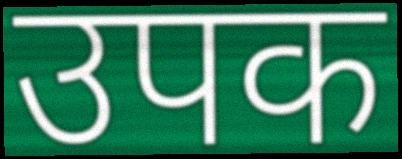
उपक